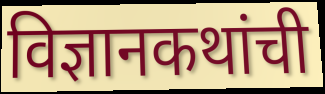
विज्ञानकथांची